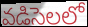
వడిసెలలో